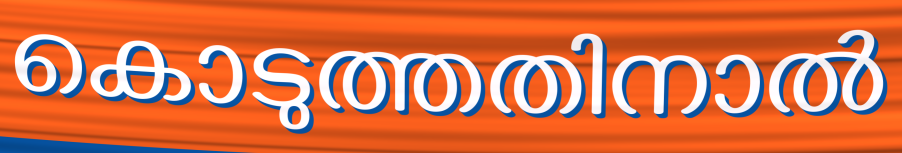
കൊടുത്തതിനാൽ